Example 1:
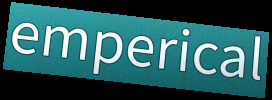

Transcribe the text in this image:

emperical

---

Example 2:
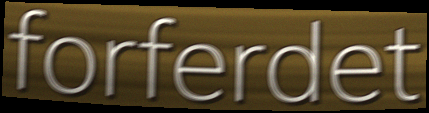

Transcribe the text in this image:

forferdet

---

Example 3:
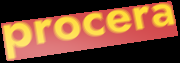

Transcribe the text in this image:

procera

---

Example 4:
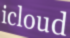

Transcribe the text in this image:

icloud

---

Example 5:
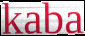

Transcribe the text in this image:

kaba